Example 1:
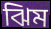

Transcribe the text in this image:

ঝিম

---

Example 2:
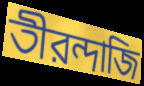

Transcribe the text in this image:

তীরন্দাজি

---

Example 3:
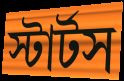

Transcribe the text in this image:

স্টার্টস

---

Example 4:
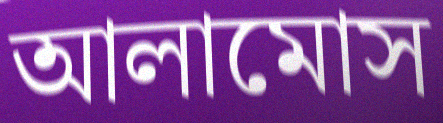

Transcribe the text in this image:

আলামোস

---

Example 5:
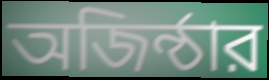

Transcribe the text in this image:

অজিন্ঠার